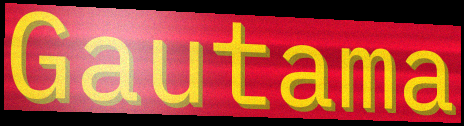
Gautama